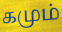
கமும்